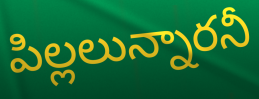
పిల్లలున్నారనీ